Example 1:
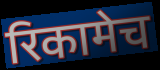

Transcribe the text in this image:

रिकामेच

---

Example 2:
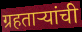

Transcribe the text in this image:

ग्रहताऱ्यांची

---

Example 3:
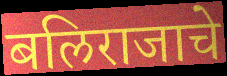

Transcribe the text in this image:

बलिराजाचे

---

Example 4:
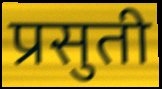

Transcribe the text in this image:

प्रसुती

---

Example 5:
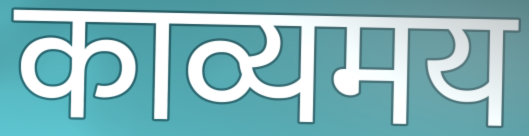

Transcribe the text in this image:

काव्यमय